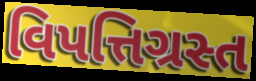
વિપત્તિગ્રસ્ત